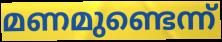
മണമുണ്ടെന്ന്